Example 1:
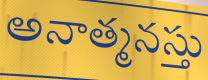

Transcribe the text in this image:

అనాత్మనస్తు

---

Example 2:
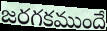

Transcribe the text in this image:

జరగకముందే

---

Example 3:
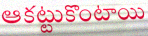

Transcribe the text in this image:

ఆకట్టుకొంటాయి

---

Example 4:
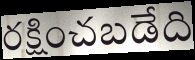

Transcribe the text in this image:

రక్షించబడేది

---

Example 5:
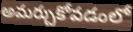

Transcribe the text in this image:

అమర్చుకోవడంలో